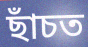
ছাঁচত